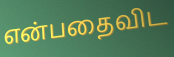
என்பதைவிட